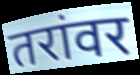
तरांवर